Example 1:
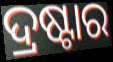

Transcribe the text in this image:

ଦ୍ରଷ୍ଟାର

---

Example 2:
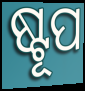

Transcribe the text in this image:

ଷ୍ଟୂପ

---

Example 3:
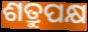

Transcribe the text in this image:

ଶତ୍ରୁପକ୍ଷ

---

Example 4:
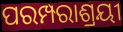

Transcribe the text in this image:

ପରମ୍ପରାଶ୍ରୟୀ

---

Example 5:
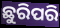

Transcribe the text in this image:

ଛୁରିପରି